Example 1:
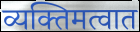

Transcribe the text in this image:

व्यक्तिमत्वात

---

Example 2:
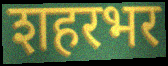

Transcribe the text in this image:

शहरभर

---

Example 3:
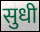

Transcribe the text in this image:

सुधी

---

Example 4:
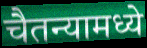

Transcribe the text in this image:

चैतन्यामध्ये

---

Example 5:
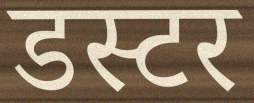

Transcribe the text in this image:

डस्टर